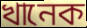
খানেক